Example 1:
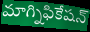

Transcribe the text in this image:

మాగ్నిఫికేషన్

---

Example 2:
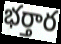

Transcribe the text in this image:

భర్తార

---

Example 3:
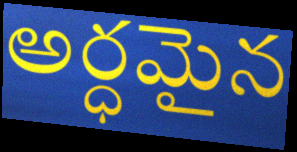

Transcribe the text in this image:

అర్ధమైన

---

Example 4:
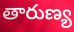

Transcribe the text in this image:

తారుణ్య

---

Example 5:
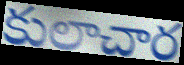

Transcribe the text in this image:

కులాచార